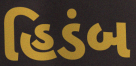
હિડંબ